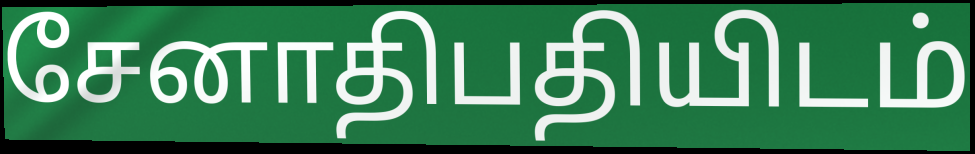
சேனாதிபதியிடம்